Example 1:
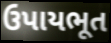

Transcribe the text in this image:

ઉપાયભૂત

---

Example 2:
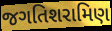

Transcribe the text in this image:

જગતિશરામિણ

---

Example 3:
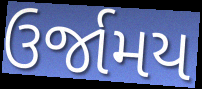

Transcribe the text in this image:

ઉર્જામય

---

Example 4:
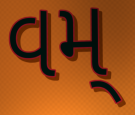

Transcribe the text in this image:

વમ્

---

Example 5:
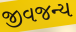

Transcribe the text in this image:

જીવજન્ય